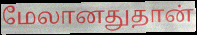
மேலானதுதான்